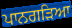
ਪਾਨਗੜਿਆ